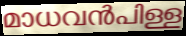
മാധവൻപിള്ള